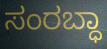
ಸಂರಬ್ಧಾ